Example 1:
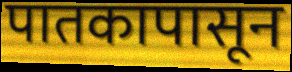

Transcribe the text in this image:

पातकापासून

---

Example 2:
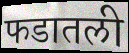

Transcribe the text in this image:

फडातली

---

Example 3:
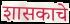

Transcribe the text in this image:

शासकाचे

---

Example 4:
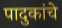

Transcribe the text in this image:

पादुकांचे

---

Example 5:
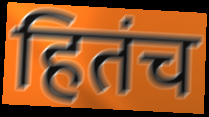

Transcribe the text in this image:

हितंच